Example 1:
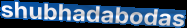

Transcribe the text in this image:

shubhadabodas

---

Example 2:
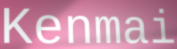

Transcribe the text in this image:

Kenmai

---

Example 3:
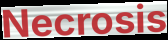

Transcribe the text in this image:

Necrosis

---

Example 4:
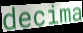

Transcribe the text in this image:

decima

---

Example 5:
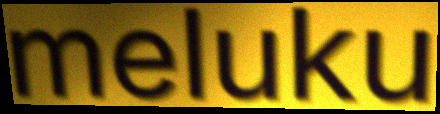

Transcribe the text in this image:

meluku